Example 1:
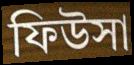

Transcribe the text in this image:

ফিউসা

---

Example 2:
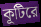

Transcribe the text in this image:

কূটিরে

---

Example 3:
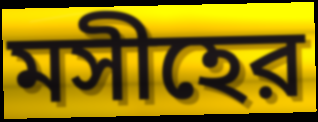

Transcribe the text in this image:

মসীহের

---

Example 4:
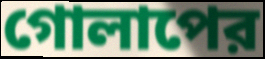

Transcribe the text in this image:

গোলাপের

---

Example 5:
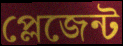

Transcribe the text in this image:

প্লেজেন্ট